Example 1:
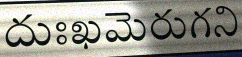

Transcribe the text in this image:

దుఃఖమెరుగని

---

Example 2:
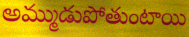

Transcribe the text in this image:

అమ్ముడుపోతుంటాయి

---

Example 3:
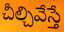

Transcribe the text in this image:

చీల్చివేస్తే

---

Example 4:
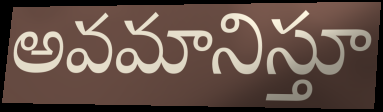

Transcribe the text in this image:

అవమానిస్తూ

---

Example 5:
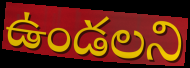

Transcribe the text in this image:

ఉండలని